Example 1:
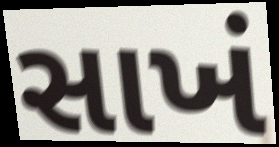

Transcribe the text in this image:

સાખં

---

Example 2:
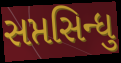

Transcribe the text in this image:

સપ્તસિન્ધુ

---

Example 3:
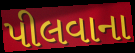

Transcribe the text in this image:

પીલવાના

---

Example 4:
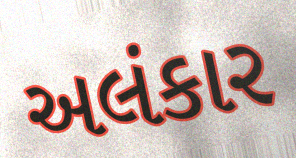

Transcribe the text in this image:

અલંકાર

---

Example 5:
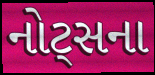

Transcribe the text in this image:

નોટ્સના